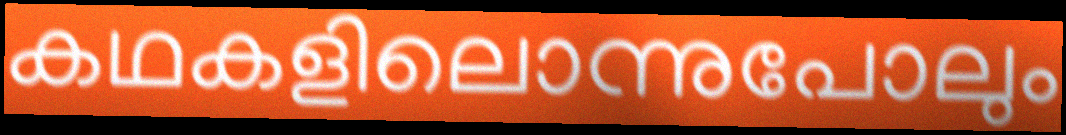
കഥകളിലൊന്നുപോലും